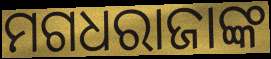
ମଗଧରାଜାଙ୍କ